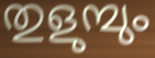
തുളുമ്പും